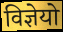
विज्ञेयो